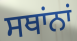
ਸਥਾਂਨਾਂ